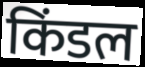
किंडल